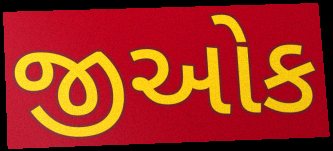
જીઓક